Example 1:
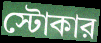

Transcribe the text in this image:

স্টোকার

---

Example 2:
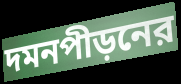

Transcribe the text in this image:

দমনপীড়নের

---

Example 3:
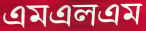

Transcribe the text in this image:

এমএলএম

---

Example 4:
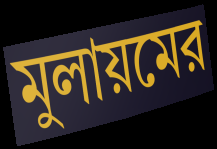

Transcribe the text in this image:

মুলায়মের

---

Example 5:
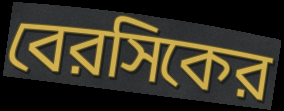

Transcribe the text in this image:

বেরসিকের